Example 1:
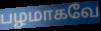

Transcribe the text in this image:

பழமாகவே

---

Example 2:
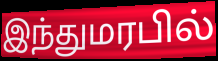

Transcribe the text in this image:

இந்துமரபில்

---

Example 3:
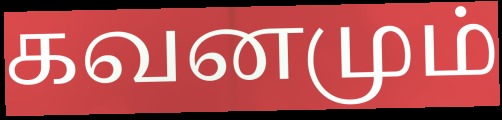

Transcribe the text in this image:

கவனமும்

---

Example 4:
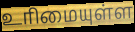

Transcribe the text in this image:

உரிமையுள்ள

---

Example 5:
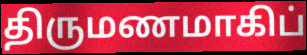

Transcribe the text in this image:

திருமணமாகிப்